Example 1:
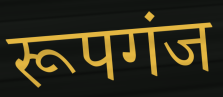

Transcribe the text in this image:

रूपगंज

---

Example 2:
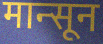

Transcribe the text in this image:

मान्सून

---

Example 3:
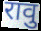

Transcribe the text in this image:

रावु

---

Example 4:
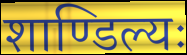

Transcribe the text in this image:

शाण्डिल्यः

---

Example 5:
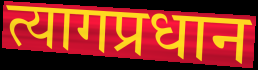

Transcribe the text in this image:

त्यागप्रधान